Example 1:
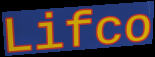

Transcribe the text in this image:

Lifco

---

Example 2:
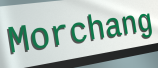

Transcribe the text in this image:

Morchang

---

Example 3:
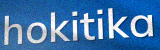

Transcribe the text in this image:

hokitika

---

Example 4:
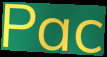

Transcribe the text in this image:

Pac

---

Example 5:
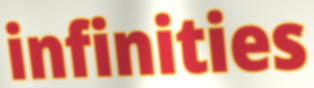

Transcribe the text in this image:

infinities